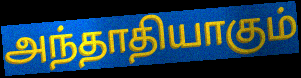
அந்தாதியாகும்